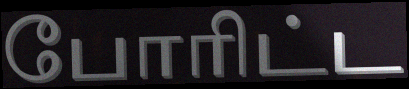
போரிட்ட